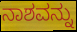
ನಾಶವನ್ನು